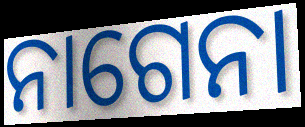
ନାଗେନା